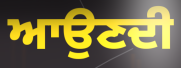
ਆਉਣਦੀ